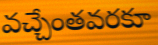
వచ్చేంతవరకూ